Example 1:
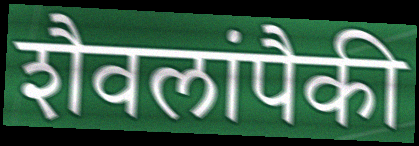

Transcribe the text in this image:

शैवलांपैकी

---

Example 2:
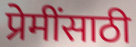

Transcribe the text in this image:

प्रेमींसाठी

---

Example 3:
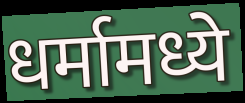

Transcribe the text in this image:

धर्मामध्ये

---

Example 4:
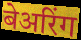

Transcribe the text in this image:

बेअरिंग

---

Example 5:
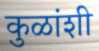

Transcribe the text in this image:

कुळांशी